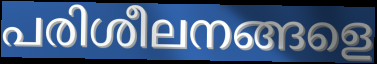
പരിശീലനങ്ങളെ